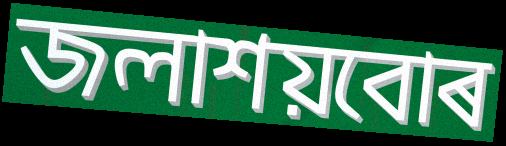
জলাশয়বোৰ